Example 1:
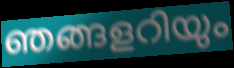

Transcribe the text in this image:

ഞങ്ങളറിയും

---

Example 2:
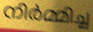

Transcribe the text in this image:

നിർമ്മിച്ച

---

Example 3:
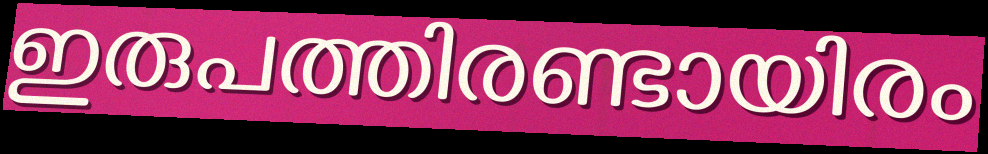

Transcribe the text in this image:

ഇരുപത്തിരണ്ടായിരം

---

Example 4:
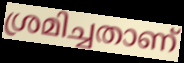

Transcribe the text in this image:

ശ്രമിച്ചതാണ്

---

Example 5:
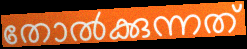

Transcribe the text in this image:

തോൽക്കുന്നത്